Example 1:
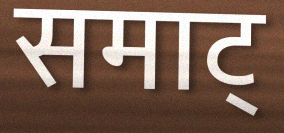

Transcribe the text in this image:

समाट्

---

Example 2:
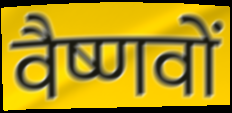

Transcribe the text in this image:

वैष्णवों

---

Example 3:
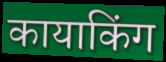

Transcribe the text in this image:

कायाकिंग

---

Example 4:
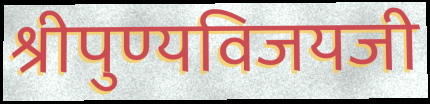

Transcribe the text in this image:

श्रीपुण्यविजयजी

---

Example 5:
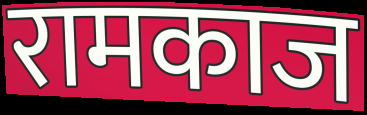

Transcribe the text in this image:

रामकाज